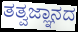
ತತ್ವಜ್ಞಾನದ